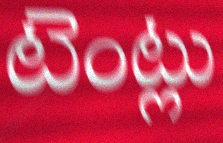
టెంట్లు